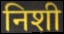
निशी